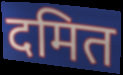
दमित